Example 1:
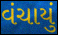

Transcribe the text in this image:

વંચાયું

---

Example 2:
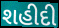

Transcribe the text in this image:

શહીદી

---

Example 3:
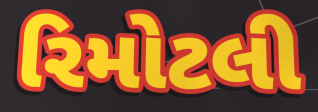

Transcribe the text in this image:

રિમોટલી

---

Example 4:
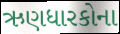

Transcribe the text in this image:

ઋણધારકોના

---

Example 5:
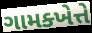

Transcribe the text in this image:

ગામક્ખેત્તે